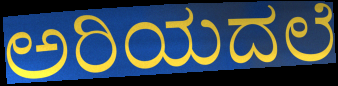
ಅರಿಯದಲೆ